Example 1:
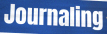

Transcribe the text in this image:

Journaling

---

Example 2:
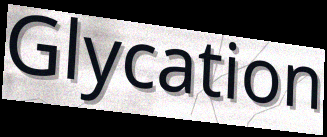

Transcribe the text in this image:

Glycation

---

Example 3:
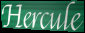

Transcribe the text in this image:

Hercule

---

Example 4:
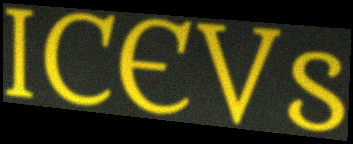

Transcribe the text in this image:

ICEVs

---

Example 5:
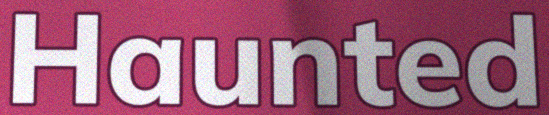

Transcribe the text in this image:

Haunted